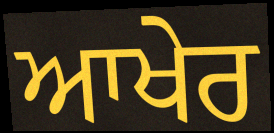
ਆਖੇਰ